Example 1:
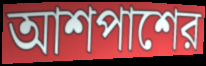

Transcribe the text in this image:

আশপাশের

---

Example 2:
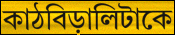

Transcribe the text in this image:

কাঠবিড়ালিটাকে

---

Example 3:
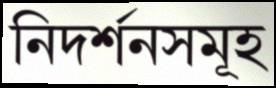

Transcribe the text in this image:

নিদর্শনসমূহ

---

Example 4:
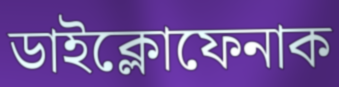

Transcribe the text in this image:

ডাইক্লোফেনাক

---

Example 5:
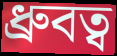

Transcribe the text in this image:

ধ্রুবত্ব